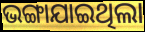
ଭଙ୍ଗାଯାଇଥିଲା